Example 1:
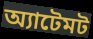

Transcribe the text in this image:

অ্যাটেমট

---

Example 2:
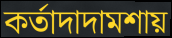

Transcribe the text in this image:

কর্তাদাদামশায়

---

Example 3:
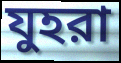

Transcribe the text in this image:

যুহরা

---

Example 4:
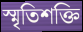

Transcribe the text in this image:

স্মৃতিশক্তি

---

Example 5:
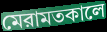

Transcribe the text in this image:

মেরামতকালে